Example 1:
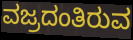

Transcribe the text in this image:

ವಜ್ರದಂತಿರುವ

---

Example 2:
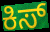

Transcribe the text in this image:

ಕಿಸ್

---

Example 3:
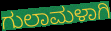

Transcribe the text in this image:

ಗುಲಾಮಳಾಗಿ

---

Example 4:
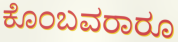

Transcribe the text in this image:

ಕೊಂಬವರಾರೂ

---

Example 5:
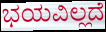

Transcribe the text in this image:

ಭಯವಿಲ್ಲದೆ